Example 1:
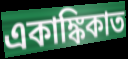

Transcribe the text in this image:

একাঙ্কিকাত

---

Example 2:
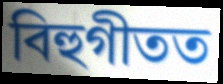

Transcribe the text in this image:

বিহুগীতত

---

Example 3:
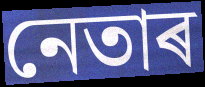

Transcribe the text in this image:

নেতাৰ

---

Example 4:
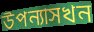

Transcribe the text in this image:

উপন্যাসখন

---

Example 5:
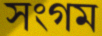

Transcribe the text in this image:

সংগম